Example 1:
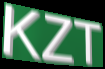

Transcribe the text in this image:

KZT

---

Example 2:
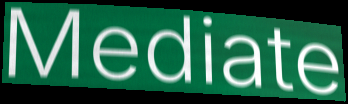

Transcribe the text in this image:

Mediate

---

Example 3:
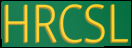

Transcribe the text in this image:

HRCSL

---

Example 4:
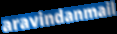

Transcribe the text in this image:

aravindanmail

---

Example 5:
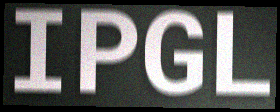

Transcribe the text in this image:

IPGL